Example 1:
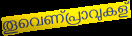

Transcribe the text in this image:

തൂവെണ്പ്രാവുകള്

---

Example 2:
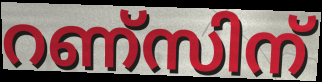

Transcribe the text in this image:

റണ്സിന്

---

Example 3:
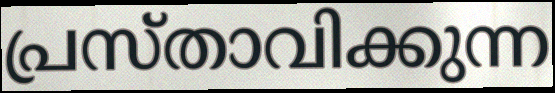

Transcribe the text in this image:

പ്രസ്താവിക്കുന്ന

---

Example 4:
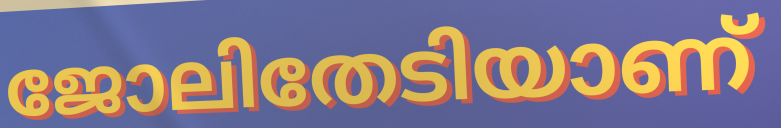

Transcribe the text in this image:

ജോലിതേടിയാണ്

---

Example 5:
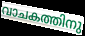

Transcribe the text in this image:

വാചകത്തിനു